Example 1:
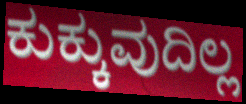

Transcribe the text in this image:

ಕುಕ್ಕುವುದಿಲ್ಲ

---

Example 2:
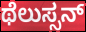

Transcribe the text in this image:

ಥೆಲುಸ್ಸನ್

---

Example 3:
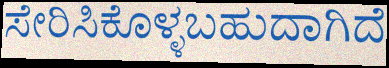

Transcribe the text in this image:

ಸೇರಿಸಿಕೊಳ್ಳಬಹುದಾಗಿದೆ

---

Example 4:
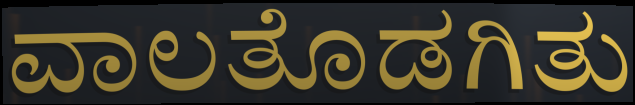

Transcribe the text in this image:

ವಾಲತೊಡಗಿತು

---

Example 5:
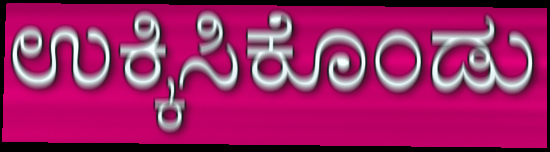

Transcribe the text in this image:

ಉಕ್ಕಿಸಿಕೊಂಡು